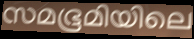
സമഭൂമിയിലെ